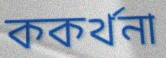
ককৰ্থনা